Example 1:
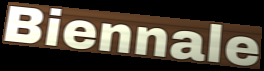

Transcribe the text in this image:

Biennale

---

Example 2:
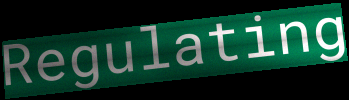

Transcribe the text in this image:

Regulating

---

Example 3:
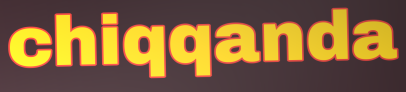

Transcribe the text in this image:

chiqqanda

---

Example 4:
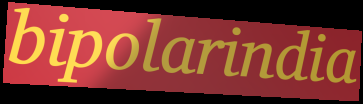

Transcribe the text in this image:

bipolarindia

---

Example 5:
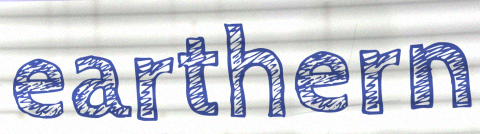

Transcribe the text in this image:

earthern